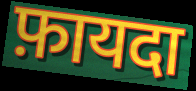
फ़ायदा